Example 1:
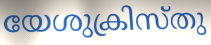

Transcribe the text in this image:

യേശുക്രിസ്തു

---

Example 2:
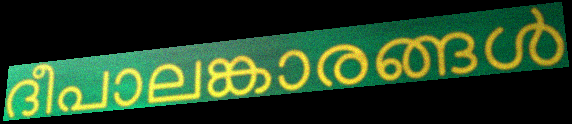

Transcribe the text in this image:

ദീപാലങ്കാരങ്ങൾ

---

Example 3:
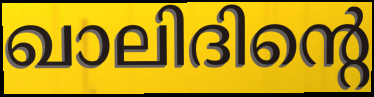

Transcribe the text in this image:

ഖാലിദിന്റെ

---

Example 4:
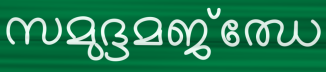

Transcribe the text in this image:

സമുദ്ദമജ്ഝേ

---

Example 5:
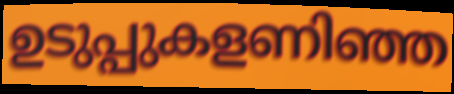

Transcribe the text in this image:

ഉടുപ്പുകളണിഞ്ഞ